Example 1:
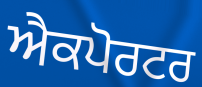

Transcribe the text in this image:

ਐਕਪੋਰਟਰ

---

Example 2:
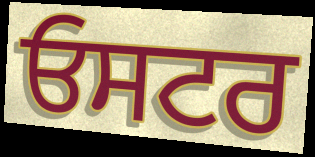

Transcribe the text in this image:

ਓਸਟਰ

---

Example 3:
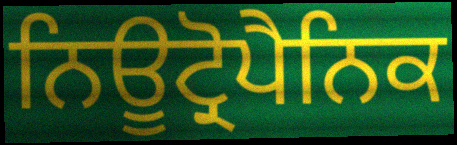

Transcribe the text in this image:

ਨਿਊਟ੍ਰੋਪੈਨਿਕ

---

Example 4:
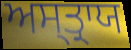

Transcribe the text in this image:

ਅਸ੍ਤ੍ਰਾਯ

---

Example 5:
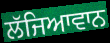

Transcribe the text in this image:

ਲੱਜਿਆਵਾਨ